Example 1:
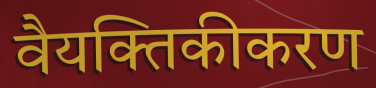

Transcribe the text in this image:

वैयक्तिकीकरण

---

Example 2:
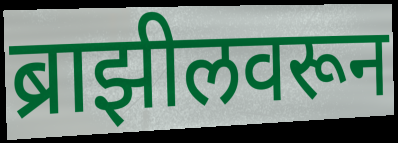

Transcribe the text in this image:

ब्राझीलवरून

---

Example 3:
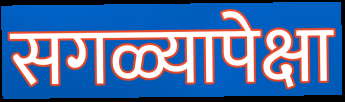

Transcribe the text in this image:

सगळ्यापेक्षा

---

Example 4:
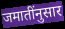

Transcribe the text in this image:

जमातींनुसार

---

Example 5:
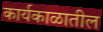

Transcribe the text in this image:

कार्यकाळातील